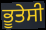
ਭੂਤੇਸੀ